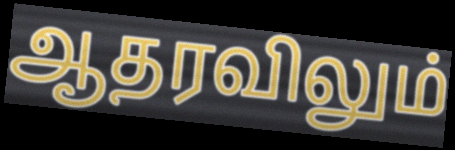
ஆதரவிலும்